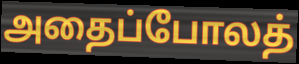
அதைப்போலத்